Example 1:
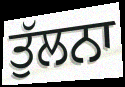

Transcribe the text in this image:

ਤੁੱਲਨਾ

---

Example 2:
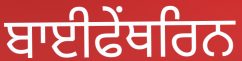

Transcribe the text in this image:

ਬਾਈਫੇਂਥਰਿਨ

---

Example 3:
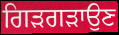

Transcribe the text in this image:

ਗਿੜਗੜਾਉਣ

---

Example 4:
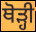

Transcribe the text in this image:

ਥੋਡ਼੍ਹੀ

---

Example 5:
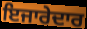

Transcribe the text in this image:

ਇਜਾਰੇਦਾਰ